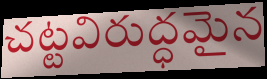
చట్టవిరుద్ధమైన